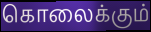
கொலைக்கும்